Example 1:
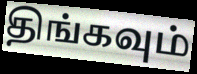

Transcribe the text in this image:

திங்கவும்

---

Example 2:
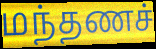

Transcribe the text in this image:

மந்தணச்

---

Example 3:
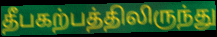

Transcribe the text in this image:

தீபகற்பத்திலிருந்து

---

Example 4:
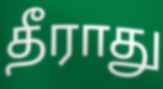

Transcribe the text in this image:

தீராது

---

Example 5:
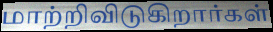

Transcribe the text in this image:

மாற்றிவிடுகிறார்கள்